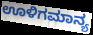
ಊಳಿಗಮಾನ್ಯ